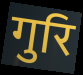
गुरि